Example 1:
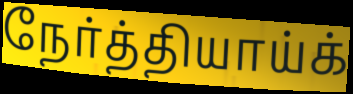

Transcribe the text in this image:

நேர்த்தியாய்க்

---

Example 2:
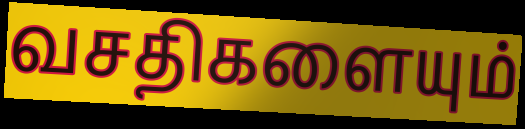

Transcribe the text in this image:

வசதிகளையும்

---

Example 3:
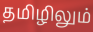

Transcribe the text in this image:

தமிழிலும்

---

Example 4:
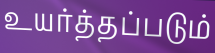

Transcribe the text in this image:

உயர்த்தப்படும்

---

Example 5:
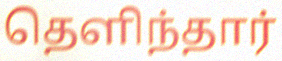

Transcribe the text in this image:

தெளிந்தார்